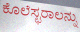
ಕೊಲೆಸ್ಟರಾಲನ್ನು